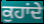
ਕੁਹਾਂਦੇ